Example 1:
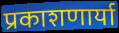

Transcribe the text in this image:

प्रकाशणार्या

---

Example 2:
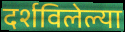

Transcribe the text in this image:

दर्शविलेल्या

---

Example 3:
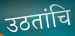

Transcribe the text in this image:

उठतांचि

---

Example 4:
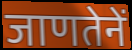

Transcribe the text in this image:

जाणतेनें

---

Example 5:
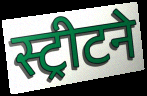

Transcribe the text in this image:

स्ट्रीटने